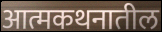
आत्मकथनातील